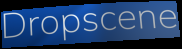
Dropscene